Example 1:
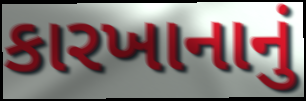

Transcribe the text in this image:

કારખાનાનું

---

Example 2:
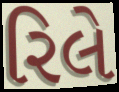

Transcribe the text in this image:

રિલે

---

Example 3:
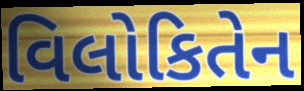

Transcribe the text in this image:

વિલોકિતેન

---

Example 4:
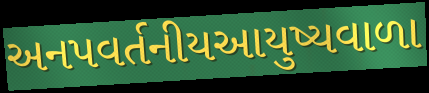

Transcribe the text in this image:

અનપવર્તનીયઆયુષ્યવાળા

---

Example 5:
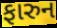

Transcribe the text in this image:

ફારુન